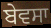
ਬੇਵਸਾ